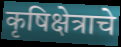
कृषिक्षेत्राचे